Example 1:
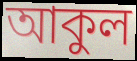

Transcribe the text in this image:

আকুল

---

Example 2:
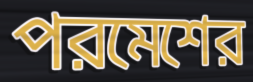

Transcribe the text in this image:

পরমেশের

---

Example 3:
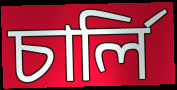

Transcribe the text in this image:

চার্লি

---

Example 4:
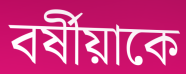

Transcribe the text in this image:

বর্ষীয়াকে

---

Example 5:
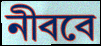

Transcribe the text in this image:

নীববে